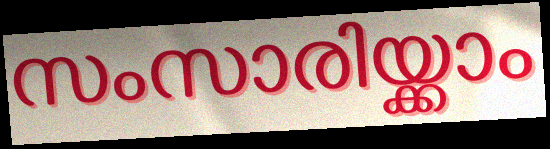
സംസാരിയ്ക്കാം